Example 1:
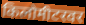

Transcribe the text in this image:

किलोमीटरवर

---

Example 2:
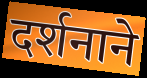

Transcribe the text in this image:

दर्शनाने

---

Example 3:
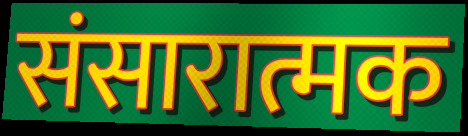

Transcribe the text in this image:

संसारात्मक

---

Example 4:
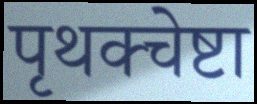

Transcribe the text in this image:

पृथक्चेष्टा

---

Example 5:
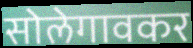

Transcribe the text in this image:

सोलेगावकर